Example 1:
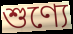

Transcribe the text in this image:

শুণ্যে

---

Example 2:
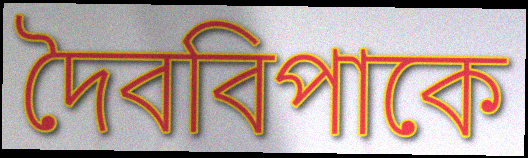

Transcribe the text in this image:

দৈববিপাকে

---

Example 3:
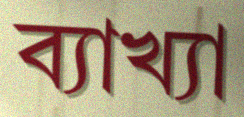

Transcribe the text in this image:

ব্য়াখ্যা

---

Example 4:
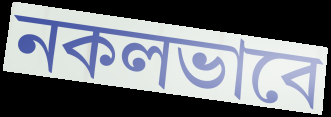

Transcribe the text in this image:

নকলভাবে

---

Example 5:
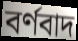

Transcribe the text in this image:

বর্ণবাদ